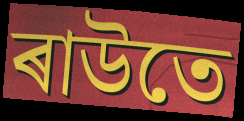
ৰাউতে